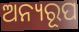
ଅନ୍ୟରୂପ